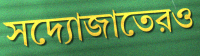
সদ্যোজাতেরও